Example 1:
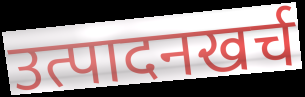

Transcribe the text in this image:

उत्पादनखर्च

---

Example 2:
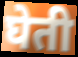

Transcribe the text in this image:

घेती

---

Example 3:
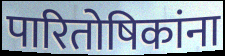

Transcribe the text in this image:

पारितोषिकांना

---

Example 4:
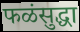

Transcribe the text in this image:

फळंसुद्धा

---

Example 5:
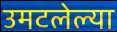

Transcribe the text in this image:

उमटलेल्या